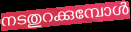
നടതുറക്കുമ്പോൾ